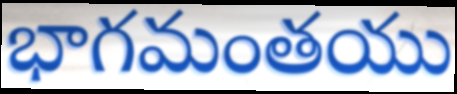
భాగమంతయు